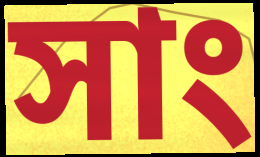
সাং